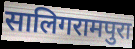
सालिगरामपुरा